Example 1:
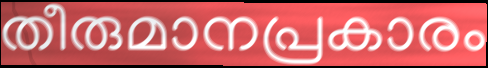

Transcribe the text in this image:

തീരുമാനപ്രകാരം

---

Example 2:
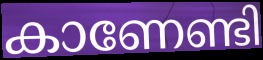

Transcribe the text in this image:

കാണേണ്ടി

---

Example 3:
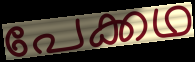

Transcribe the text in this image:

പേക്കഥ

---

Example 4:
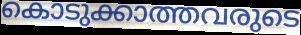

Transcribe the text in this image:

കൊടുക്കാത്തവരുടെ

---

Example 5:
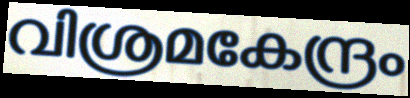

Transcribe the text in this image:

വിശ്രമകേന്ദ്രം